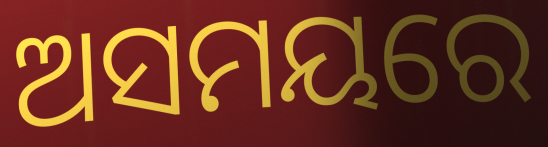
ଅସମୟରେ